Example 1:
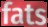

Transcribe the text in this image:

fats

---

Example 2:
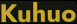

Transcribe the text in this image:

Kuhuo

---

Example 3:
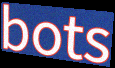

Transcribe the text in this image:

bots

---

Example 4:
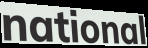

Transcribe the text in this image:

national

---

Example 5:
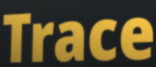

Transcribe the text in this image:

Trace